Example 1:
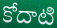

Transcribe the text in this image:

కోదాటి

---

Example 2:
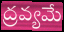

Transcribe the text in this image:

ద్రవ్యమే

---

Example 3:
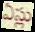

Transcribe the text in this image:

ఏస్లు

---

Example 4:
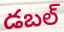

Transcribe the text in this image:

డబల్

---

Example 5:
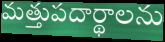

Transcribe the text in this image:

మత్తుపదార్థాలను